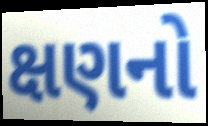
ક્ષણનો